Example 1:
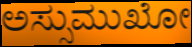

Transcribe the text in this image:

ಅಸ್ಸುಮುಖೋ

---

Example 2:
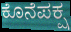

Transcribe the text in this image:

ಕೊನೆಪಕ್ಷ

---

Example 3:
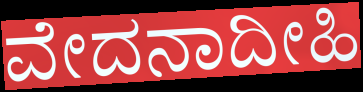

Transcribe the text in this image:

ವೇದನಾದೀಹಿ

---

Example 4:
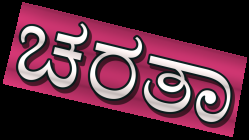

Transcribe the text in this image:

ಚರತಾ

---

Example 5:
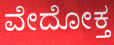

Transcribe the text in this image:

ವೇದೋಕ್ತ